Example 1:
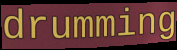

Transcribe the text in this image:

drumming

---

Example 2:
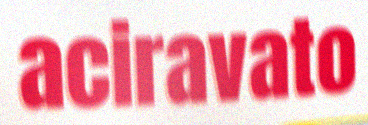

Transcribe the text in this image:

aciravato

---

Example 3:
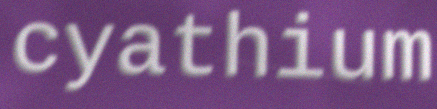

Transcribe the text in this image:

cyathium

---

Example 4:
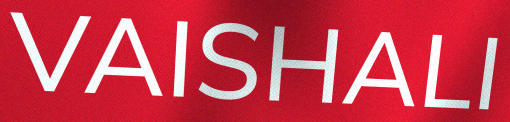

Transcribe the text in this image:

VAISHALI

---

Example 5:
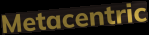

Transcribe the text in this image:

Metacentric